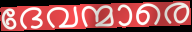
ദേവന്മാരെ